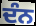
ਦੰਨ